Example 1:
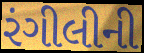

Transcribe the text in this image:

રંગીલીની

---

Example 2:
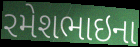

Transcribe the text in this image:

રમેશભાઇના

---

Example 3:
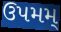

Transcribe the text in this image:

ઉપમમ્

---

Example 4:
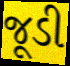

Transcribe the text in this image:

જૂડી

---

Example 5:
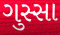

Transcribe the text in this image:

ગુસ્સા